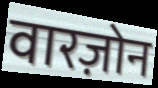
वारज़ोन